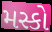
મસ્કો